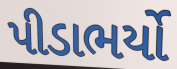
પીડાભર્યો